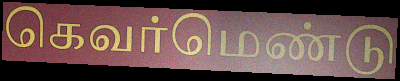
கெவர்மெண்டு